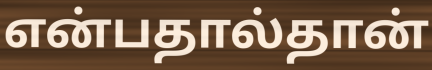
என்பதால்தான்